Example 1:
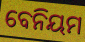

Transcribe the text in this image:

ବେନିୟମ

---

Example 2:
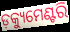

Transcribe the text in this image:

ଡ଼କ୍ୟୁମେଣ୍ଟରି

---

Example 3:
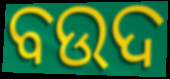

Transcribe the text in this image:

ବଉଦ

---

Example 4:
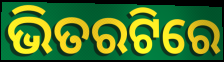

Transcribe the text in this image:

ଭିତରଟିରେ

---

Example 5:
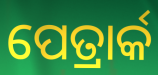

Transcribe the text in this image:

ପେତ୍ରାର୍କ